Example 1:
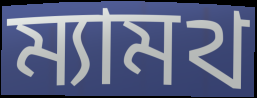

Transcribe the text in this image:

ম্যামথ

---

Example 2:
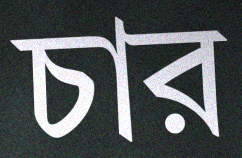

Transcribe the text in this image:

চার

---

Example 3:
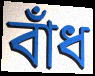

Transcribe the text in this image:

বাঁধ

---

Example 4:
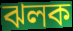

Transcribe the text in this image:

ঝলক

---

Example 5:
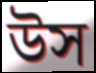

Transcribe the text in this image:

উস